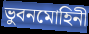
ভুবনমোহিনী